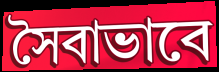
সৈবাভাবে